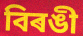
বিৰঙী